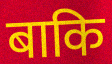
बाकि